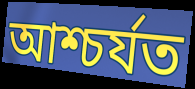
আশ্চৰ্যত